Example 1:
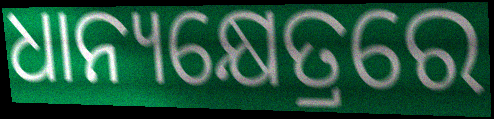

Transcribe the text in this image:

ଧାନ୍ୟକ୍ଷେତ୍ରରେ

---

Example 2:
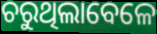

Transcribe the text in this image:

ଚରୁଥିଲାବେଳେ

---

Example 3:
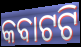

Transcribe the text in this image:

କବାଟଟି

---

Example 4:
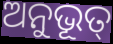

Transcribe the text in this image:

ଅନୁଭୂତ୍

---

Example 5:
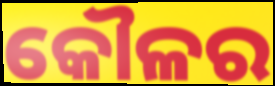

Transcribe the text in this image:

କୌଳର